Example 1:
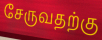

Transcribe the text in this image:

சேருவதற்கு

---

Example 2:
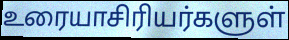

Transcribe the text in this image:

உரையாசிரியர்களுள்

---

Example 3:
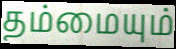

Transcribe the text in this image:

தம்மையும்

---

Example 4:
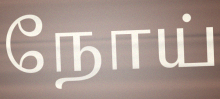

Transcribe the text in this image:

நோய்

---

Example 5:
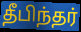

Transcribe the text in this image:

தீபிந்தர்